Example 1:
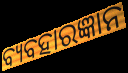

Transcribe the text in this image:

ବ୍ୟବହାରଜ୍ଞାନ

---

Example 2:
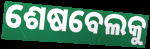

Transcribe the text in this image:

ଶେଷବେଲକୁ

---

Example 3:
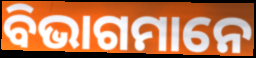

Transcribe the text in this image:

ବିଭାଗମାନେ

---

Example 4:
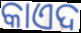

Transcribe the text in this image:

କାଏଦ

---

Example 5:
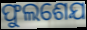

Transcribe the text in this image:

ଫୁଲଶେଯ